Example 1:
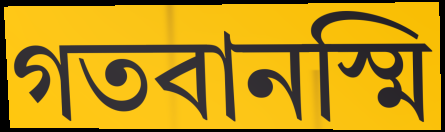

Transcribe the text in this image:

গতবানস্মি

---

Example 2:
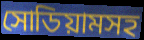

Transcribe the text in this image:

সোডিয়ামসহ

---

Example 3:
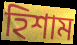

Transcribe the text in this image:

হিশাম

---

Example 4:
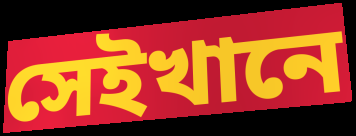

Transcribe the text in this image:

সেইখানে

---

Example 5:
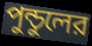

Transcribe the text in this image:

পুন্ডুলের